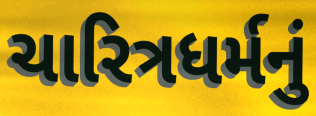
ચારિત્રધર્મનું